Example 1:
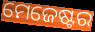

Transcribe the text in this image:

ମେଜେଷ୍ଟର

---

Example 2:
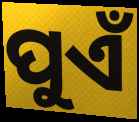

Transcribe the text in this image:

ପୁଏଁ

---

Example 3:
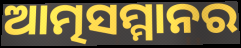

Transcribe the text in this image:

ଆତ୍ମସମ୍ମାନର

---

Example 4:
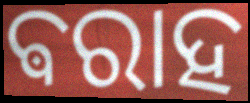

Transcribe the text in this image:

ଵରାହ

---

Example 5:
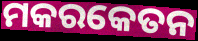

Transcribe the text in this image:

ମକରକେତନ